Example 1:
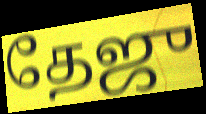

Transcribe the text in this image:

தேஜு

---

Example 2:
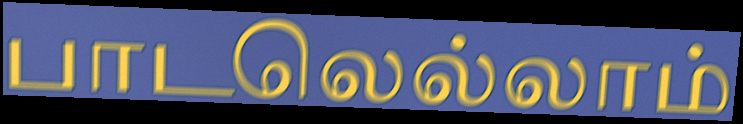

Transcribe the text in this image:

பாடலெல்லாம்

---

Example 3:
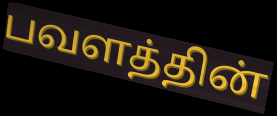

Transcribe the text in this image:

பவளத்தின்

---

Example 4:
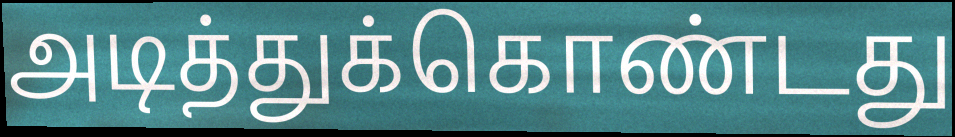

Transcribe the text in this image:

அடித்துக்கொண்டது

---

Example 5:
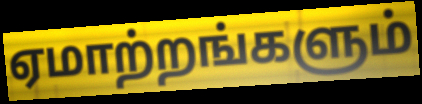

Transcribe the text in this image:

ஏமாற்றங்களும்